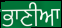
ਭਾਣੀਆ